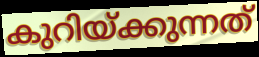
കുറിയ്ക്കുന്നത്